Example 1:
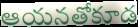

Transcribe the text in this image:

ఆయనతోకూడ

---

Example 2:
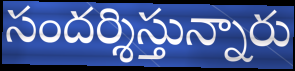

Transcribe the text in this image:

సందర్శిస్తున్నారు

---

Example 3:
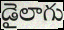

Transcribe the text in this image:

డైలాగు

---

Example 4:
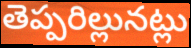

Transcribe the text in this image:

తెప్పరిల్లునట్లు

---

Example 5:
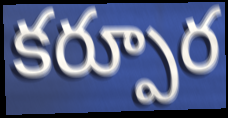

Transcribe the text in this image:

కర్పూర